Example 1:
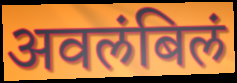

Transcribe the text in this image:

अवलंबिलं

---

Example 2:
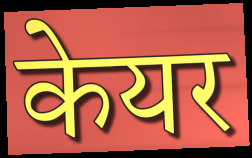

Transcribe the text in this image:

केयर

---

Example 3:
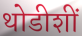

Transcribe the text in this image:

थोडीशीं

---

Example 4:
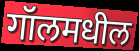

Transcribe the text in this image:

गॉलमधील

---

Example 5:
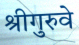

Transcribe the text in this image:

श्रीगुरुवे